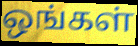
ஒங்கள்